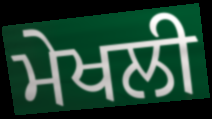
ਮੇਖਲੀ